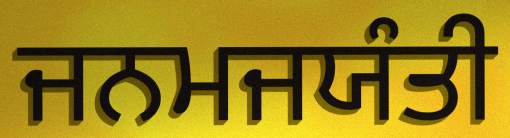
ਜਨਮਜਯੰਤੀ